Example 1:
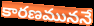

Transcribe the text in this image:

కారణముననే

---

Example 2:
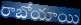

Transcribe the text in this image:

రాబోయాయి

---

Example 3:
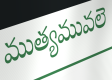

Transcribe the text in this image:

ముత్యమువలె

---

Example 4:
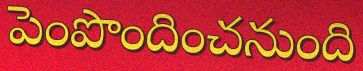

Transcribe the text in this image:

పెంపొందించనుంది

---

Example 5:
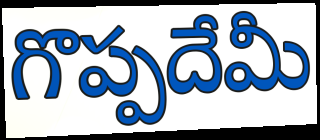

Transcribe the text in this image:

గొప్పదేమీ